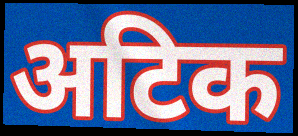
अटिक